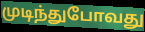
முடிந்துபோவது